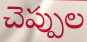
చెప్పుల